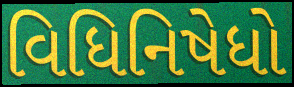
વિધિનિષેધો